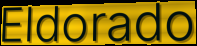
Eldorado